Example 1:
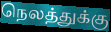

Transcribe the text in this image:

நெலத்துக்கு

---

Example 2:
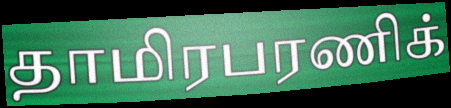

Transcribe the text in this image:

தாமிரபரணிக்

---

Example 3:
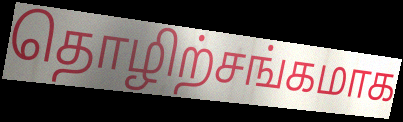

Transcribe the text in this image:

தொழிற்சங்கமாக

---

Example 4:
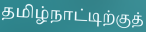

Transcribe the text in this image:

தமிழ்நாட்டிற்குத்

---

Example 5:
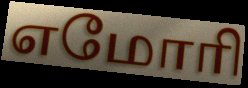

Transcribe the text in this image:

எமோரி